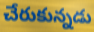
చేరుకున్నడు